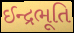
ઈન્દ્રભૂતિ